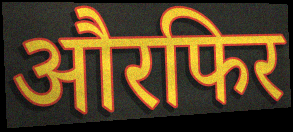
औरफिर